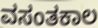
ವಸಂತಕಾಲ